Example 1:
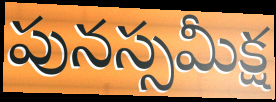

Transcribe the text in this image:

పునస్సమీక్ష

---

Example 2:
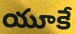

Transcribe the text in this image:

యూకే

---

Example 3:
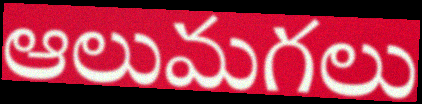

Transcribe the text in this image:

ఆలుమగలు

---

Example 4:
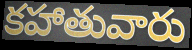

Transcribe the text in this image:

కహాతువారు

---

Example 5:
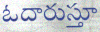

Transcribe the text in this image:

ఓదారుస్తూ